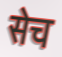
सेच